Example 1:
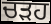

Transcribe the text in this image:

ਚੜਹ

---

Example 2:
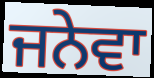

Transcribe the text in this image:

ਜਨੇਵਾ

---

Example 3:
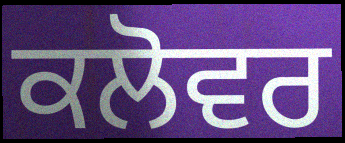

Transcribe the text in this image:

ਕਲੋਵਰ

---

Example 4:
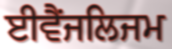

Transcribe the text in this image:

ਈਵੈਂਜਲਿਜਮ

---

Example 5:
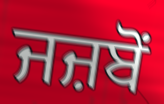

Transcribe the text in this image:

ਜਜ਼ਬੋਂ